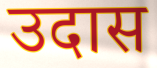
उदास